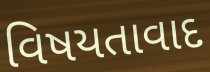
વિષયતાવાદ